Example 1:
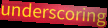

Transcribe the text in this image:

underscoring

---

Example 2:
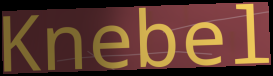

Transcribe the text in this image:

Knebel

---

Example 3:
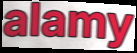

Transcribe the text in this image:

alamy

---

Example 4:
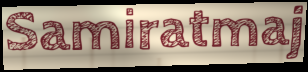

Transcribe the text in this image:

Samiratmaj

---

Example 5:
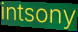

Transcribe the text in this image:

intsony